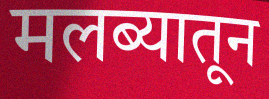
मलब्यातून